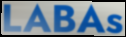
LABAs